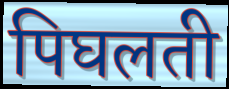
पिघलती